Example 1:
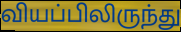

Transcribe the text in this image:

வியப்பிலிருந்து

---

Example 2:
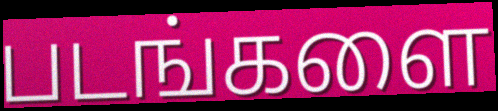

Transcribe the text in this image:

படங்களை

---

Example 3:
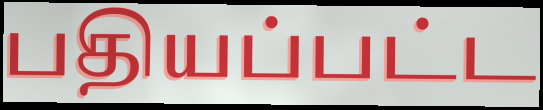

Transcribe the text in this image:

பதியப்பட்ட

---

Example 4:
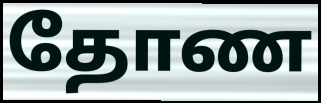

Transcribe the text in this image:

தோண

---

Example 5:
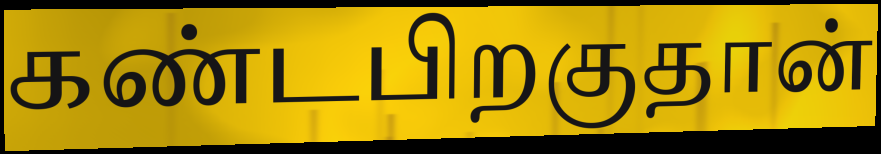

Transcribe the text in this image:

கண்டபிறகுதான்